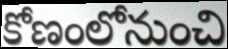
కోణంలోనుంచి